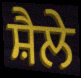
ਸ਼ੈਲੇ